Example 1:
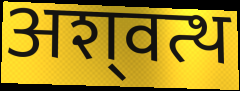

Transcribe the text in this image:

अश्वत्थ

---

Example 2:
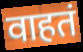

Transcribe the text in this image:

वाहतं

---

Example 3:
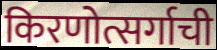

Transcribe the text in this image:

किरणोत्सर्गाची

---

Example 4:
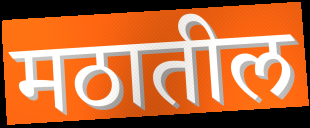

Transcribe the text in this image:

मठातील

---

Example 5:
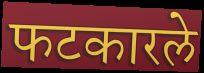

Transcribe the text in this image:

फटकारले